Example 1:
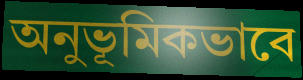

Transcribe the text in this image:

অনুভূমিকভাবে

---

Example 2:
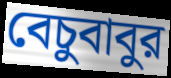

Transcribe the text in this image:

বেচুবাবুর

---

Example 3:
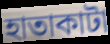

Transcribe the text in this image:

হাতাকাটা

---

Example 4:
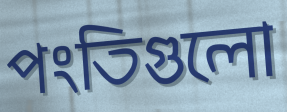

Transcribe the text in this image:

পংতিগুলো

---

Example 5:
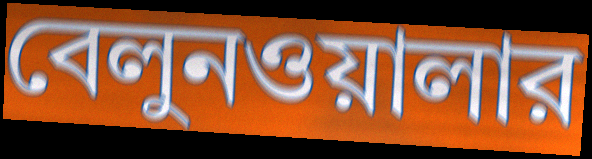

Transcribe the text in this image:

বেলুনওয়ালার